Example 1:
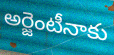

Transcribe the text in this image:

అర్జెంటీనాకు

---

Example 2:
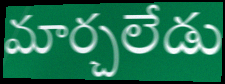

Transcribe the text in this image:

మార్చలేడు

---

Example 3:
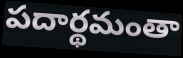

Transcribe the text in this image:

పదార్థమంతా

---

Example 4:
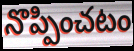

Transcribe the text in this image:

నొప్పించటం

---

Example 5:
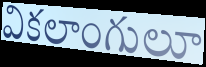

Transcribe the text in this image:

వికలాంగులూ